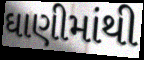
ઘાણીમાંથી